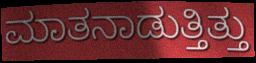
ಮಾತನಾಡುತ್ತಿತ್ತು